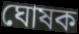
ঘোষক